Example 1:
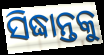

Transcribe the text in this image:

ସିଦ୍ଧାନ୍ତକୁ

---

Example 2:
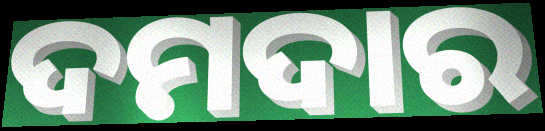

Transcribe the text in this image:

ଦମଦାର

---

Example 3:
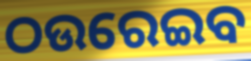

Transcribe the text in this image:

ଠଉରେଇବ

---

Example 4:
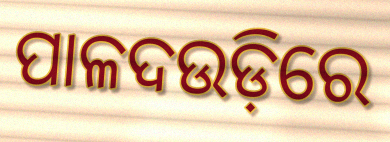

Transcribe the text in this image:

ପାଳଦଉଡ଼ିରେ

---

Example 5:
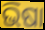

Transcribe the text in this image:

ଭିଷା